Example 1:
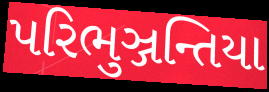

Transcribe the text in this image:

પરિભુઞ્જન્તિયા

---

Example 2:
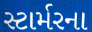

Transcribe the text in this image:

સ્ટાર્મરના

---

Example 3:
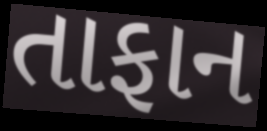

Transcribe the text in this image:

તાફાન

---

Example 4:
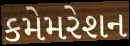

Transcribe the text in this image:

કમેમરેશન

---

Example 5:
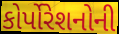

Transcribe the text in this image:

કોર્પોરેશનોની